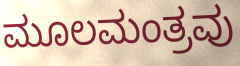
ಮೂಲಮಂತ್ರವು